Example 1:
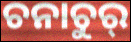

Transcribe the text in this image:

ଚନାଚୁର୍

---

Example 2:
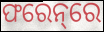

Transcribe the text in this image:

ଫରେନ୍‌ରେ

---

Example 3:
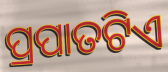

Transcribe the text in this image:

ପ୍ରପାତଟିଏ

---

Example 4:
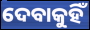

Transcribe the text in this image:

ଦେବାକୁହିଁ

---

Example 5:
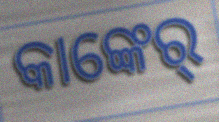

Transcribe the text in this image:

କାଙ୍କେର୍